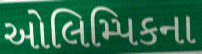
ઓલિમ્પિકના